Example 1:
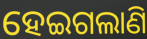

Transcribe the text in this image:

ହେଇଗଲାଣି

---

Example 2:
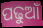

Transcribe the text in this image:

ପଢୁଆଁ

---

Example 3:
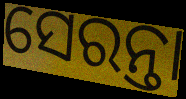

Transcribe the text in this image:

ସେରନ୍ତା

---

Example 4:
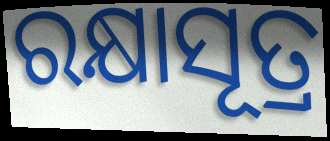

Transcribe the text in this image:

ରକ୍ଷାସୂତ୍ର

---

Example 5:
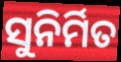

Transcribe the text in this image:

ସୁନିର୍ମିତ